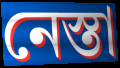
নেস্তা